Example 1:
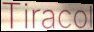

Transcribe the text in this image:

Tiracol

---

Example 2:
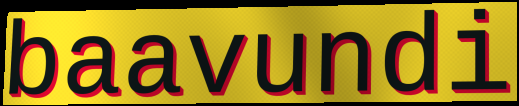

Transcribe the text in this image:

baavundi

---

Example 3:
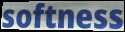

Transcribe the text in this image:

softness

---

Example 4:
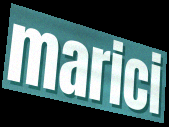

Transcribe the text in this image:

marici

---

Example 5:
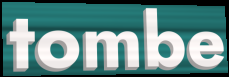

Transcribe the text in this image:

tombe